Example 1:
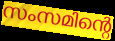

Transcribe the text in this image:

സംസമിന്റെ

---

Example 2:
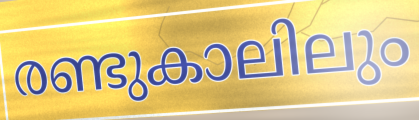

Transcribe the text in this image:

രണ്ടുകാലിലും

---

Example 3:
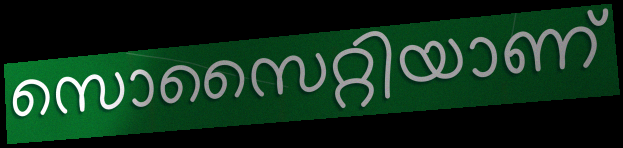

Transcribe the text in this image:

സൊസൈറ്റിയാണ്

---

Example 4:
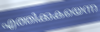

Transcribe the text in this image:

എത്തിക്കുകയെന്ന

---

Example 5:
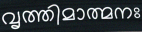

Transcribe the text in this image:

വൃത്തിമാത്മനഃ